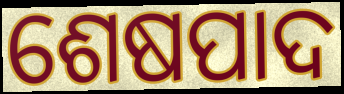
ଶେଷପାଦ